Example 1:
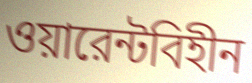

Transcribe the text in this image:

ওয়ারেন্টবিহীন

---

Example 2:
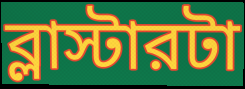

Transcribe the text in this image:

ব্লাস্টারটা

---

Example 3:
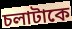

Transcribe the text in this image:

চলাটাকে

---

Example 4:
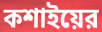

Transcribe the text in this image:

কশাইয়ের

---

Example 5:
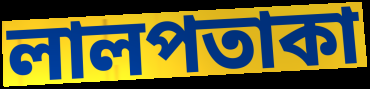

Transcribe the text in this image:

লালপতাকা